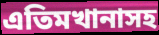
এতিমখানাসহ